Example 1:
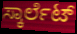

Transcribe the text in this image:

ಸ್ಕಾರ್ಲೆಟ್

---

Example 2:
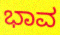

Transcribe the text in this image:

ಭಾವ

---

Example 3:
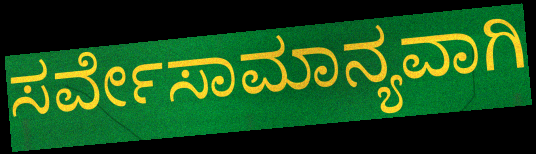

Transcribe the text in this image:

ಸರ್ವೇಸಾಮಾನ್ಯವಾಗಿ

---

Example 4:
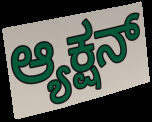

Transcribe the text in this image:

ಆ್ಯಕ್ಷನ್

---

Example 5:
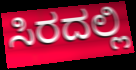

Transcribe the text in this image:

ಸಿರದಲ್ಲಿ